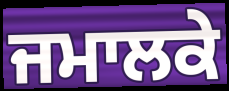
ਜਮਾਲਕੇ